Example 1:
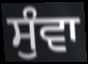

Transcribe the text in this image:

ਸੁੰਵਾ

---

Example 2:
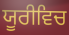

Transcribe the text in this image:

ਯੂਰੀਵਿਚ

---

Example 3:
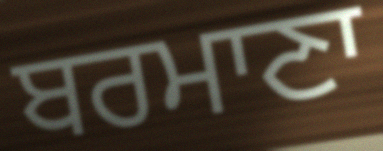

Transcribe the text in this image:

ਬਰਮਾਣਾ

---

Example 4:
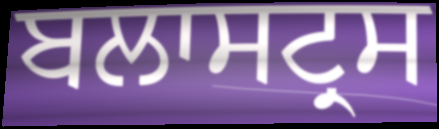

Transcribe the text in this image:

ਬਲਾਸਟ੍ਰਸ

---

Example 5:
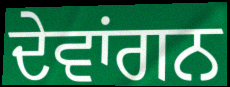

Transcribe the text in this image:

ਦੇਵਾਂਗਨ